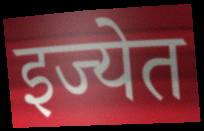
इज्येत